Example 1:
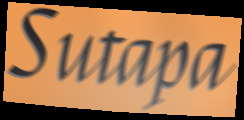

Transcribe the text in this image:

Sutapa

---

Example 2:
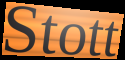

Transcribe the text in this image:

Stott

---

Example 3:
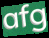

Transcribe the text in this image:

afg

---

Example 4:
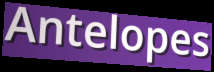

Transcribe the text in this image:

Antelopes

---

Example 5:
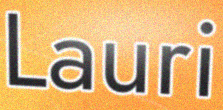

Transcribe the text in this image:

Lauri